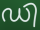
ഡി